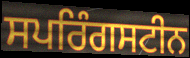
ਸਪਰਿੰਗਸਟੀਨ